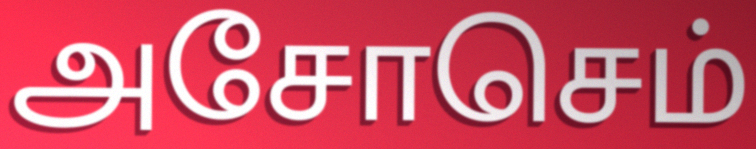
அசோசெம்